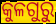
କୁଳଗୁରୁ